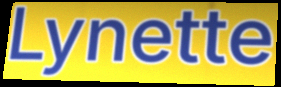
Lynette